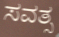
ಸವತ್ಸ